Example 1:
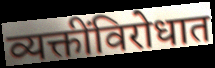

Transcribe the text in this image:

व्यक्तींविरोधात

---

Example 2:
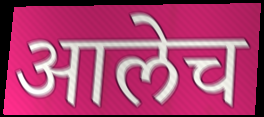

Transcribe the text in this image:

आलेच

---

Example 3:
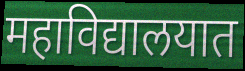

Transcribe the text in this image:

महाविद्यालयात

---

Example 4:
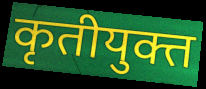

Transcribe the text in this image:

कृतीयुक्त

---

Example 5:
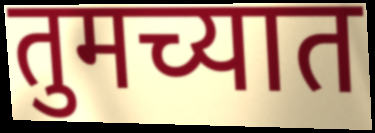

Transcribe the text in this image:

तुमच्यात